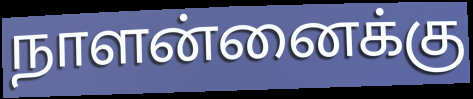
நாளன்னைக்கு